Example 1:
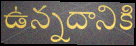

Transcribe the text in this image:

ఉన్నదానికి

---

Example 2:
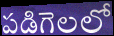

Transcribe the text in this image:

పడిగెలలో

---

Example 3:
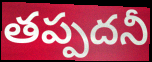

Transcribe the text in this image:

తప్పదనీ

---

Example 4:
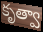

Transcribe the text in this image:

కృత్వా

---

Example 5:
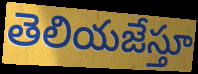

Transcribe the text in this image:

తెలియజేస్తూ